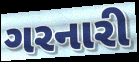
ગરનારી